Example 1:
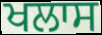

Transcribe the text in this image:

ਖਲਾਸ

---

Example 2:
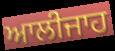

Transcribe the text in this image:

ਆਲੀਜਾਹ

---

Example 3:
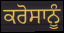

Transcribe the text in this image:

ਕਰੋਸਾਨੂੰ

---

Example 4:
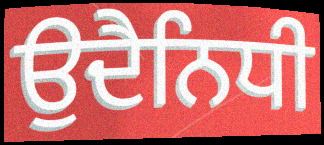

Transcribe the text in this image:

ਉਦੈਨਿਧੀ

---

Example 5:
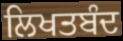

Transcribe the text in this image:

ਲਿਖਤਬੰਦ